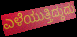
ಎಳೆಯುತ್ತಿದ್ದುದು